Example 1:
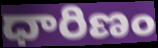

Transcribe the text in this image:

ధారిణం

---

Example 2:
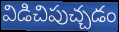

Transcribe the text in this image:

విడిచిపుచ్చడం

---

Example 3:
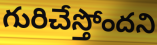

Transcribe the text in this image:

గురిచేస్తోందని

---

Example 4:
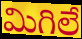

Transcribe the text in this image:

మిగిలే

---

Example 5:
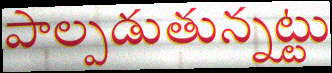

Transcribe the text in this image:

పాల్పడుతున్నట్టు